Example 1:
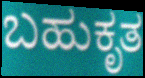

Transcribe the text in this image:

ಬಹುಕೃತ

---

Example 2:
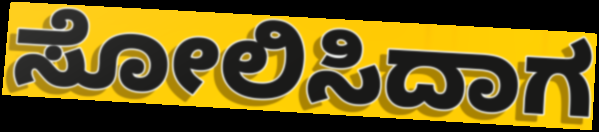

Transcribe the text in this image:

ಸೋಲಿಸಿದಾಗ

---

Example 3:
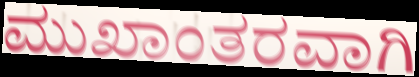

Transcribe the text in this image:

ಮುಖಾಂತರವಾಗಿ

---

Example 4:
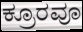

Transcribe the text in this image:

ಕ್ರೂರವೂ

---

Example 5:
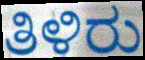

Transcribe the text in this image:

ತಿಳಿರು